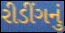
રીડીંગનું